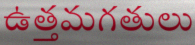
ఉత్తమగతులు